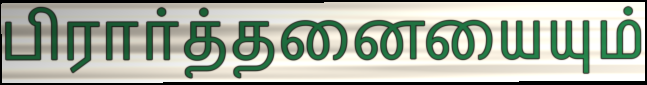
பிரார்த்தனையையும்